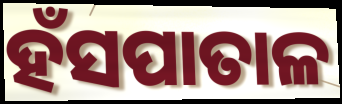
ହଁସପାତାଳ